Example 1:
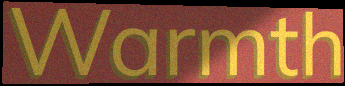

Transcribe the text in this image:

Warmth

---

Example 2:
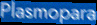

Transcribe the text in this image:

Plasmopara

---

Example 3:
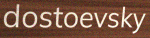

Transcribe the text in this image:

dostoevsky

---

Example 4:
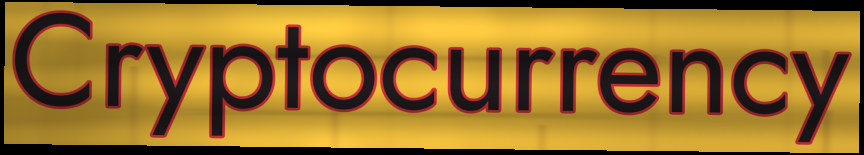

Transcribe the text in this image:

Cryptocurrency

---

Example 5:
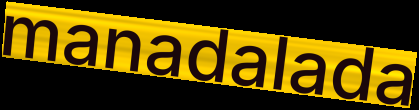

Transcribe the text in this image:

manadalada